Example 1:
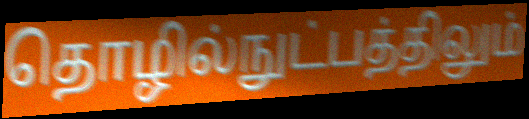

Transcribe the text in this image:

தொழில்நுட்பத்திலும்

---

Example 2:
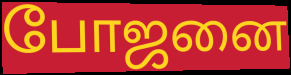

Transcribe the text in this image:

போஜனை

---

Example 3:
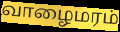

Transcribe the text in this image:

வாழைமரம்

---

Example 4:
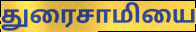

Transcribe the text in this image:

துரைசாமியை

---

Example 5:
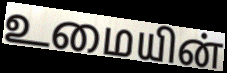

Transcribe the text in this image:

உமையின்